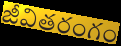
జీవితరంగం